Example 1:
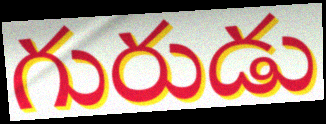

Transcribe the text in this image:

గురుడు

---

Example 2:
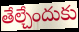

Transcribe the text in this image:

తేల్చేందుకు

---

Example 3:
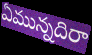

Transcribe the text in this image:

ఏమున్నదిరా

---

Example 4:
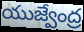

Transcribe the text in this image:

యుజ్వేంద్ర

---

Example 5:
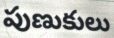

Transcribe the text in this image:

పుణుకులు